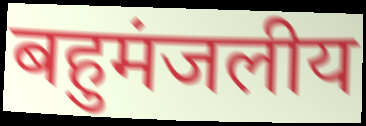
बहुमंजलीय